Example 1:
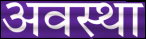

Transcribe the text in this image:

अवस्था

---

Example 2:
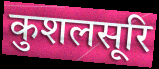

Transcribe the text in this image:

कुशलसूरि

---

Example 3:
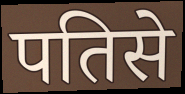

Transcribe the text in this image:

पतिसे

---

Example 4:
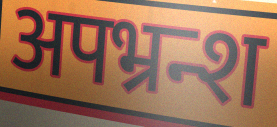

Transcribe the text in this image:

अपभ्रन्श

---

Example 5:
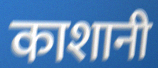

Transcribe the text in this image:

काशानी